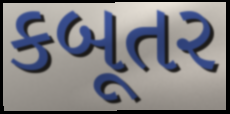
કબૂતર